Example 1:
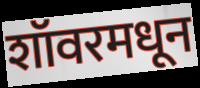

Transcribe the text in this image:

शॉवरमधून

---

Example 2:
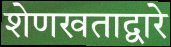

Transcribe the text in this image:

शेणखताद्वारे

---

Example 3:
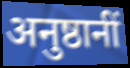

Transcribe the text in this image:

अनुष्ठानीं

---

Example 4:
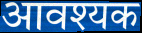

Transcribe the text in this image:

आवश्‍यक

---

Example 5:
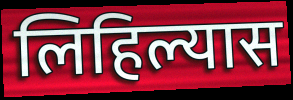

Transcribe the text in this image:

लिहिल्यास